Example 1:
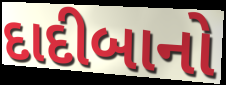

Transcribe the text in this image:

દાદીબાનો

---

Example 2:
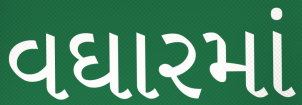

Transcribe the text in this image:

વઘારમાં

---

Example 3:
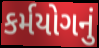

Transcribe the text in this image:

કર્મયોગનું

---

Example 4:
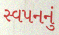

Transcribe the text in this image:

સ્વપનનું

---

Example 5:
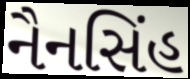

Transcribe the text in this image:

નૈનસિંહ